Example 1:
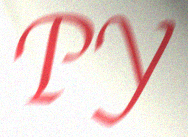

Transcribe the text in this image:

PY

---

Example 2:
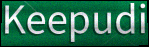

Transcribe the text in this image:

Keepudi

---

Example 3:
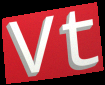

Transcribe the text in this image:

Vt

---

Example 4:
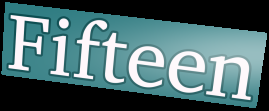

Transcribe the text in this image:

Fifteen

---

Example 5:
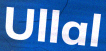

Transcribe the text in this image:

Ullal